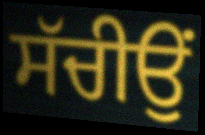
ਸੱਚੀਉਂ